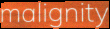
malignity